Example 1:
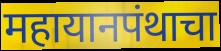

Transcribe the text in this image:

महायानपंथाचा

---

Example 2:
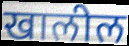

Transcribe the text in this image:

खालील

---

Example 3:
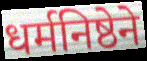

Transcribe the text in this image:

धर्मनिष्ठेने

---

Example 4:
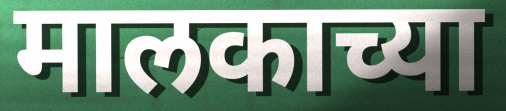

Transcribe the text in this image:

मालकाच्या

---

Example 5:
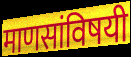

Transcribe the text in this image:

माणसांविषयी